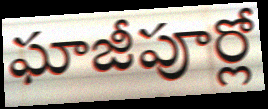
ఘాజీపూర్లో